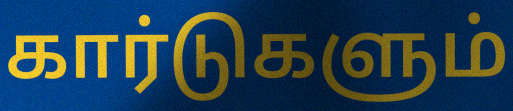
கார்டுகளும்